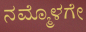
ನಮ್ಮೊಳಗೇ